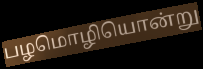
பழமொழியொன்று